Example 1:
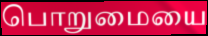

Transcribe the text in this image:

பொறுமையை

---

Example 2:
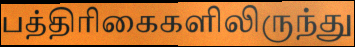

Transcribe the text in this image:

பத்திரிகைகளிலிருந்து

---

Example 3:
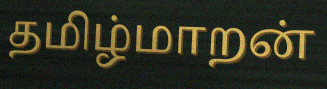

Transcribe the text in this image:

தமிழ்மாறன்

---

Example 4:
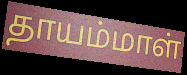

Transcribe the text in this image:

தாயம்மாள்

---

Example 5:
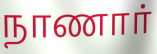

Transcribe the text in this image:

நாணார்